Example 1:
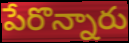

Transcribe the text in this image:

పేరొన్నారు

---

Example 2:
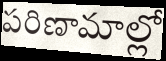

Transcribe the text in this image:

పరిణామాల్లో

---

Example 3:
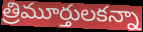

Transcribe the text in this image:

త్రిమూర్తులకన్నా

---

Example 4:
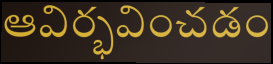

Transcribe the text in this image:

ఆవిర్భవించడం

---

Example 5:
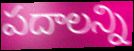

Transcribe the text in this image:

పదాలన్ని